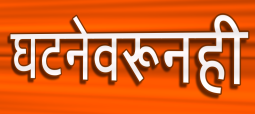
घटनेवरूनही